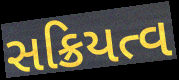
સક્રિયત્વ